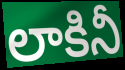
లాకినీ